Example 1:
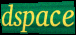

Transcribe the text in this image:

dspace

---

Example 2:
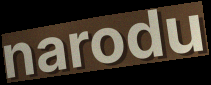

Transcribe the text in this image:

narodu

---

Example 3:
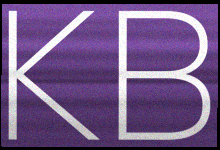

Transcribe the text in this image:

KB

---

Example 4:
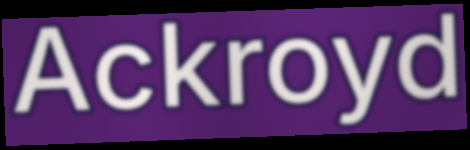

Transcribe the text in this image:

Ackroyd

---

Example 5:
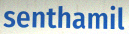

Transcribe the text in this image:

senthamil